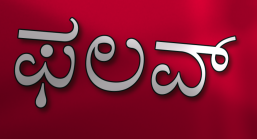
ಫಲವ್